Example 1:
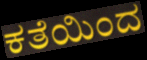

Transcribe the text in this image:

ಕತೆಯಿಂದ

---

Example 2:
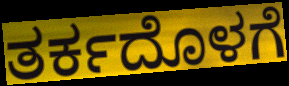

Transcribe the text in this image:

ತರ್ಕದೊಳಗೆ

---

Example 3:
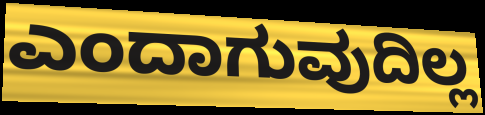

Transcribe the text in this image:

ಎಂದಾಗುವುದಿಲ್ಲ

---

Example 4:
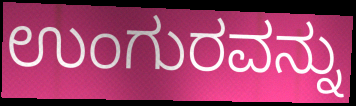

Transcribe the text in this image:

ಉಂಗುರವನ್ನು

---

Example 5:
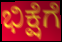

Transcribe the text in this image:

ಭಿಕ್ಷೆಗೆ